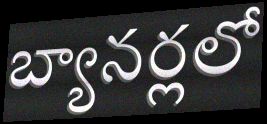
బ్యానర్లలో